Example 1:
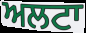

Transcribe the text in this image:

ਅਲਟਾ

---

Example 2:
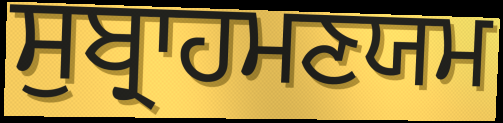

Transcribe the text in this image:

ਸੁਬ੍ਰਾਹਮਣਯਮ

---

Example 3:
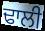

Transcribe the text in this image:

ਢਾਲੀ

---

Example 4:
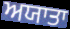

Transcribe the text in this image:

ਅਯਾਤਾ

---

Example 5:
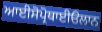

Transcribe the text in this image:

ਆਈਸੋਪ੍ਰੋਥਾਈੳਲਾਨ